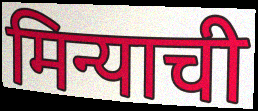
मिन्याची